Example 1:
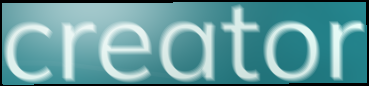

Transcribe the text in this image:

creator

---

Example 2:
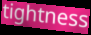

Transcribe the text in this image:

tightness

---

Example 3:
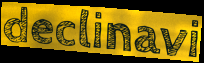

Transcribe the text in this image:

declinavi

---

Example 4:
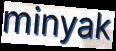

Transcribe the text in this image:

minyak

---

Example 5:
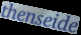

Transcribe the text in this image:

thenseide